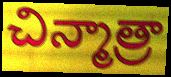
చిన్మాత్రా